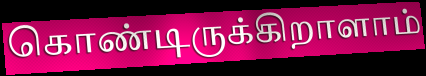
கொண்டிருக்கிறாளாம்